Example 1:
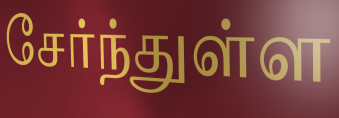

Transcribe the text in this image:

சேர்ந்துள்ள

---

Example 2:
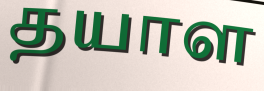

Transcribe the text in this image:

தயாள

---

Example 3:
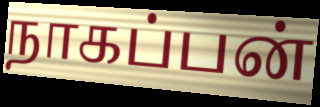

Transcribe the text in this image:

நாகப்பன்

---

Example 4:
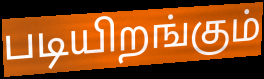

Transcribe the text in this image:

படியிறங்கும்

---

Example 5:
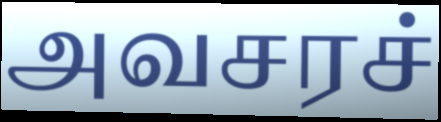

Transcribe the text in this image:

அவசரச்